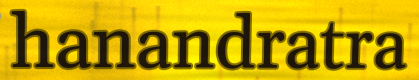
hanandratra